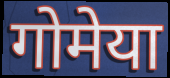
गोमेया